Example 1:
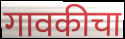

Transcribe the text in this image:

गावकीचा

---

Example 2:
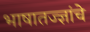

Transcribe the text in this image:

भाषातज्ज्ञांचे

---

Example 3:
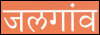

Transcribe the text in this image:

जलगांव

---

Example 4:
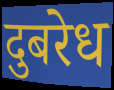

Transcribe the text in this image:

दुबरेध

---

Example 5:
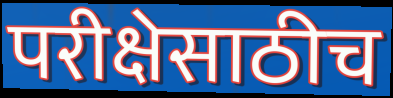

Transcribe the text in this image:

परीक्षेसाठीच